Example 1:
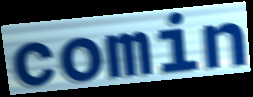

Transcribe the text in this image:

comin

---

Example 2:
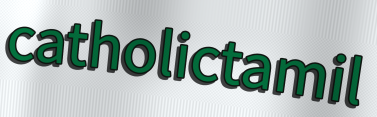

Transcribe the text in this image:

catholictamil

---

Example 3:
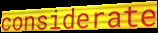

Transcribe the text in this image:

considerate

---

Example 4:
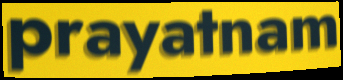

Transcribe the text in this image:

prayatnam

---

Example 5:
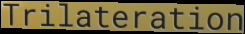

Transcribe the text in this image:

Trilateration